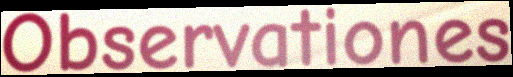
Observationes